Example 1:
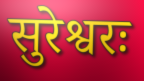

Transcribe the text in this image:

सुरेश्वरः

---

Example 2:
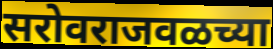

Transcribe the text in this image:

सरोवराजवळच्या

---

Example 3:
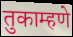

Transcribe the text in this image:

तुकाम्हणे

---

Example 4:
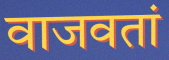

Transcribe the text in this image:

वाजवतां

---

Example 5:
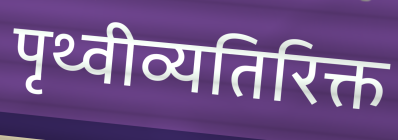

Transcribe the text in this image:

पृथ्वीव्यतिरिक्त